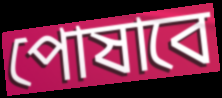
পোষাবে